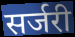
सर्जरी